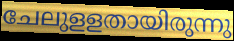
ചേലുളളതായിരുന്നു